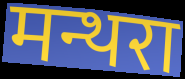
मन्थरा